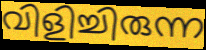
വിളിച്ചിരുന്ന